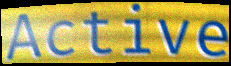
Active